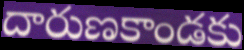
దారుణకాండకు